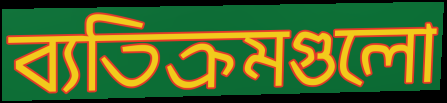
ব্যতিক্রমগুলো